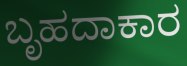
ಬೃಹದಾಕಾರ